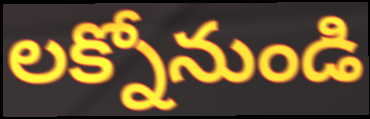
లక్నోనుండి